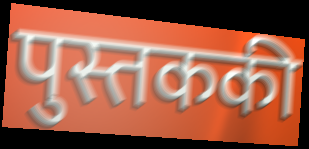
पुस्तककी